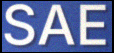
SAE